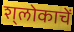
श्लोकाचें